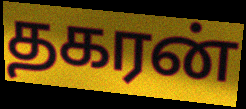
தகரன்